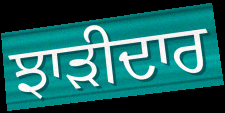
ਝਾੜੀਦਾਰ